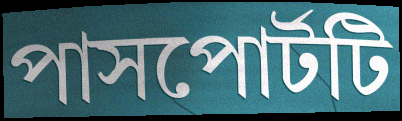
পাসপোর্টটি